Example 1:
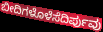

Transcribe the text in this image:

ಬೀದಿಗಳೊಳೆಸೆದಿರ್ಪುವು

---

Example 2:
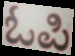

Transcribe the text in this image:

ಓಪಿ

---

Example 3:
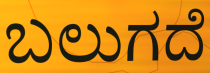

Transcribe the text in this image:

ಬಲುಗದೆ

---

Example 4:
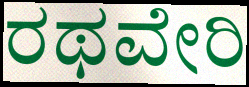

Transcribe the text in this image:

ರಥವೇರಿ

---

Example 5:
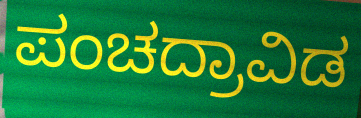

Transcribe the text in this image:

ಪಂಚದ್ರಾವಿಡ